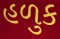
હળુક